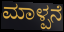
ಮಾಳ್ಪನೆ